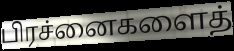
பிரச்னைகளைத்